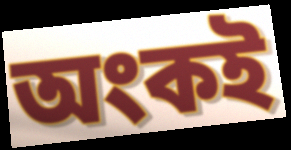
অংকই